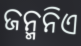
ଜନ୍ମନିଏ